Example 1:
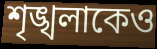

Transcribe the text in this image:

শৃঙ্খলাকেও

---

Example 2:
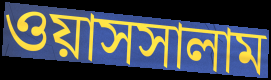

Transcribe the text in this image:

ওয়াসসালাম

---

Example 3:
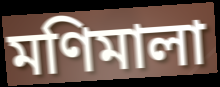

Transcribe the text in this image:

মণিমালা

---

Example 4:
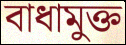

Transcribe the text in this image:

বাধামুক্ত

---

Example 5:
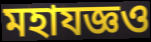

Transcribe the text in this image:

মহাযজ্ঞও